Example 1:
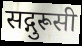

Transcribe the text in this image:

सद्गुरूसी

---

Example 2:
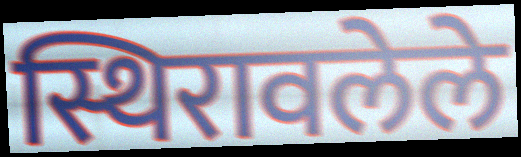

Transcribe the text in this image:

स्थिरावलेले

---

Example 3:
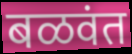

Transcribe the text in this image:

बळवंत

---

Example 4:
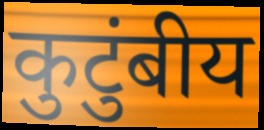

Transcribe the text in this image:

कुटुंबीय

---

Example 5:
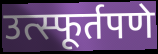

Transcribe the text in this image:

उत्स्फूर्तपणे